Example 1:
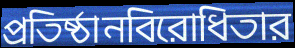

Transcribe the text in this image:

প্রতিষ্ঠানবিরোধিতার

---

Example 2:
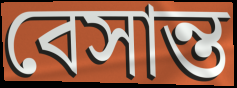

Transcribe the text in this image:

বেসান্ত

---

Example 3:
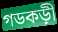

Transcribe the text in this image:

গডকড়ী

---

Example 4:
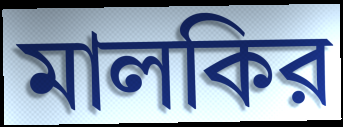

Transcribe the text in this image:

মালকির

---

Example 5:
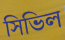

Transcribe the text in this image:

সিভিল